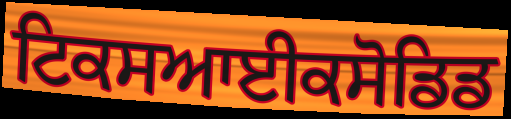
ਟਿਕਸਆਈਕਸੋਡਿਡ